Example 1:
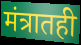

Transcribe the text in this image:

मंत्रातही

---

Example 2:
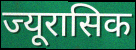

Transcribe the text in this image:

ज्यूरासिक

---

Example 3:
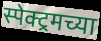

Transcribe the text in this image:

स्पेक्ट्रमच्या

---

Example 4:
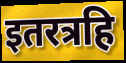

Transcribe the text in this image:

इतरत्रहि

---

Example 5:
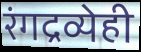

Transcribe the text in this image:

रंगद्रव्येही